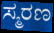
ಸ್ಮರಣ